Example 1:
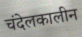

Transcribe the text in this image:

चंदेलकालीन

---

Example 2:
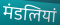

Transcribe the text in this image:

मंडलियां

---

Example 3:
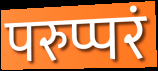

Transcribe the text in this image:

परुप्परं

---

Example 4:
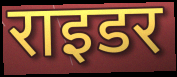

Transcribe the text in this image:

राइडर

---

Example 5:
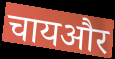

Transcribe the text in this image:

चायऔर